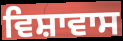
ਵਿਸ਼ਾਵਾਸ